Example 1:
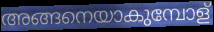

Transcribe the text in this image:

അങ്ങനെയാകുമ്പോള്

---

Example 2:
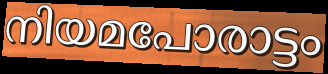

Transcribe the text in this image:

നിയമപോരാട്ടം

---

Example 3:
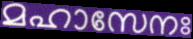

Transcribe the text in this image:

മഹാസേനഃ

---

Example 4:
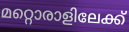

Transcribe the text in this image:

മറ്റൊരാളിലേക്ക്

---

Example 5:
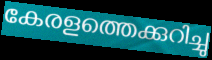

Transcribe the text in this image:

കേരളത്തെക്കുറിച്ചു